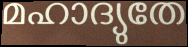
മഹാദ്യുതേ